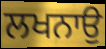
ਲਖਨਾਉ